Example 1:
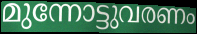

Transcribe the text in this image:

മുന്നോട്ടുവരണം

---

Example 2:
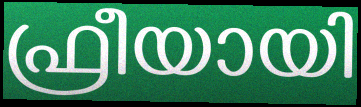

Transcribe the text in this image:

ഫ്രീയായി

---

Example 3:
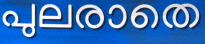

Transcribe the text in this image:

പുലരാതെ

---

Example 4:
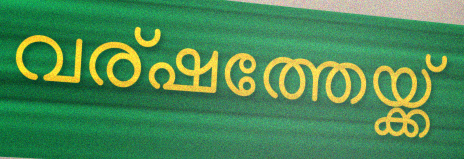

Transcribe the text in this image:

വര്ഷത്തേയ്ക്ക്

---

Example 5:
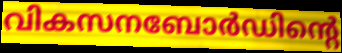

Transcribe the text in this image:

വികസനബോർഡിന്റെ